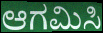
ಆಗಮಿಸಿ